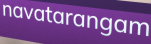
navatarangam